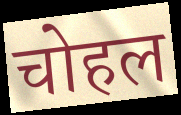
चोहल